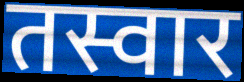
तस्वार